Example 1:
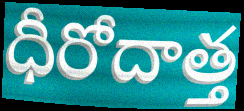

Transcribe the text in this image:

ధీరోదాత్త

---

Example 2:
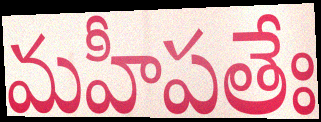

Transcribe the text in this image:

మహీపతేః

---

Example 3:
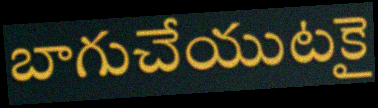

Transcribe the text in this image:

బాగుచేయుటకై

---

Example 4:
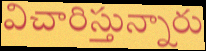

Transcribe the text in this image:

విచారిస్తున్నారు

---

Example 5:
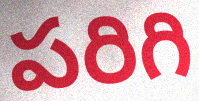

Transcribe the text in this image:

పరిగి